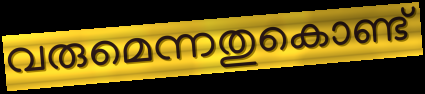
വരുമെന്നതുകൊണ്ട്